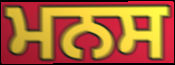
ਮਨਸ